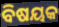
ବିଷୟକ